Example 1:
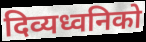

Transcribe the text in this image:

दिव्यध्वनिको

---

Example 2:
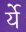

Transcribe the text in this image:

र्ये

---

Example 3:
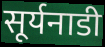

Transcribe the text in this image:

सूर्यनाडी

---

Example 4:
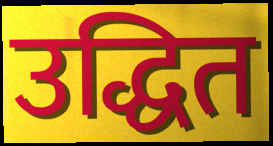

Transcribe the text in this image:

उद्धित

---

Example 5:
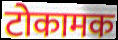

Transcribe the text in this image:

टोकामक